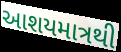
આશયમાત્રથી